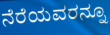
ನೆರೆಯವರನ್ನೂ